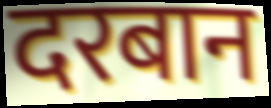
दरबान